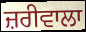
ਜ਼ਰੀਵਾਲਾ